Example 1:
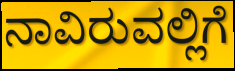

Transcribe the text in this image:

ನಾವಿರುವಲ್ಲಿಗೆ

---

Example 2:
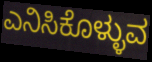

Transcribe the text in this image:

ಎನಿಸಿಕೊಳ್ಳುವ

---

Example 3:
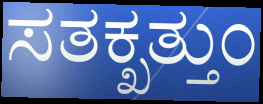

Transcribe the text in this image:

ಸತಕ್ಖತ್ತುಂ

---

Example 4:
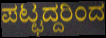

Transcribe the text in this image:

ಪಟ್ಟದ್ದರಿಂದ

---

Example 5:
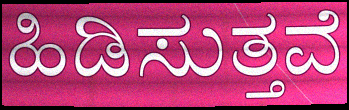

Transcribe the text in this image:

ಹಿಡಿಸುತ್ತವೆ